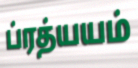
ப்ரத்யயம்